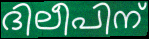
ദിലീപിന്